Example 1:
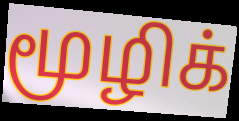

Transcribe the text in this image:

மூழிக்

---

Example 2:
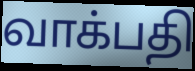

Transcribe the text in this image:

வாக்பதி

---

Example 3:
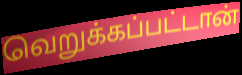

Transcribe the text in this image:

வெறுக்கப்பட்டான்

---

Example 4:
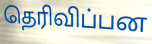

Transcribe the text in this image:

தெரிவிப்பன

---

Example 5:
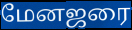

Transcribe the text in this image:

மேனஜரை